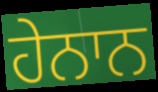
ਹੇਨਾਨ